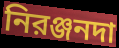
নিরঞ্জনদা